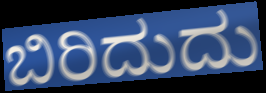
ಬಿರಿದುದು